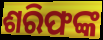
ଶରିଫଙ୍କ